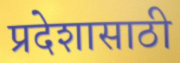
प्रदेशासाठी